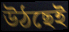
উঠছেই